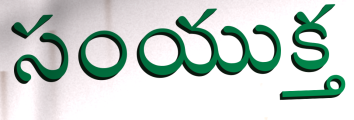
సంయుక్త